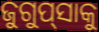
ଜୁଗୁପ୍‍ସାକୁ